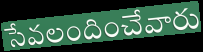
సేవలందించేవారు